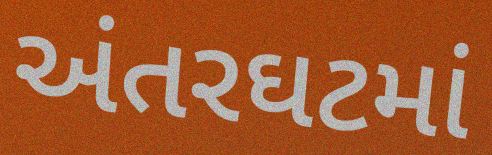
અંતરઘટમાં